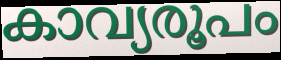
കാവ്യരൂപം